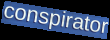
conspirator